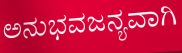
ಅನುಭವಜನ್ಯವಾಗಿ